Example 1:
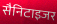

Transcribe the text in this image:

सैनिटाइजर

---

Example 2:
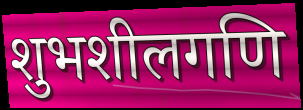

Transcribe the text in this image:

शुभशीलगणि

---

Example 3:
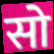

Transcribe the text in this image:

सो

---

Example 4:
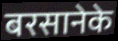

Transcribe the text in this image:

बरसानेके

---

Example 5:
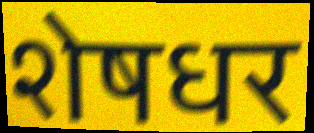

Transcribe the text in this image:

शेषधर